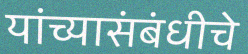
यांच्यासंबंधीचे